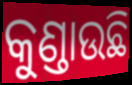
କୁଣ୍ଡାଉଛି